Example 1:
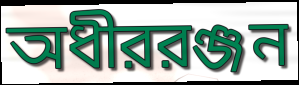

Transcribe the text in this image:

অধীররঞ্জন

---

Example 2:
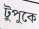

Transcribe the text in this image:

টুপুকে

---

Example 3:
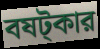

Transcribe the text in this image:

বষট্কার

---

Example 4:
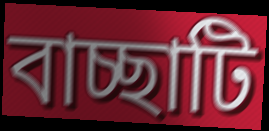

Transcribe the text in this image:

বাচ্ছাটি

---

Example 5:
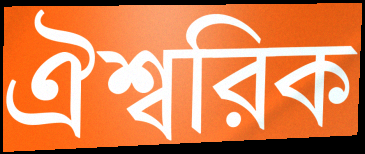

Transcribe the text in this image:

ঐশ্বরিক